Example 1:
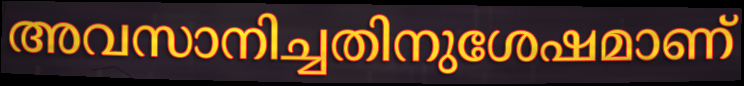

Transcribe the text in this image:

അവസാനിച്ചതിനുശേഷമാണ്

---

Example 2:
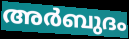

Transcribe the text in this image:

അർബുദം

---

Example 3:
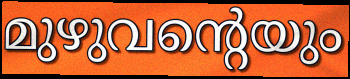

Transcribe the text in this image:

മുഴുവന്റെയും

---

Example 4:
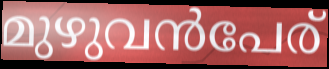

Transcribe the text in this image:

മുഴുവൻപേര്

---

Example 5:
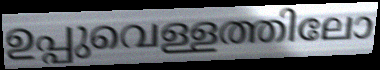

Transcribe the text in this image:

ഉപ്പുവെള്ളത്തിലോ